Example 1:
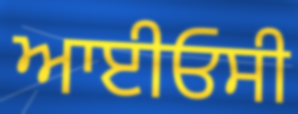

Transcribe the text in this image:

ਆਈਓਸੀ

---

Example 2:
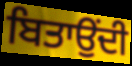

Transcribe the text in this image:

ਬਿਤਾਉਂਦੀ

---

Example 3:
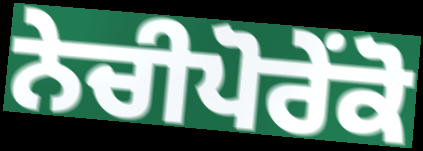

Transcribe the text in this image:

ਨੇਚੀਪੋਰੇਂਕੋ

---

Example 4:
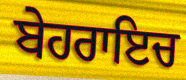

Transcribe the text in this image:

ਬੇਹਰਾਇਚ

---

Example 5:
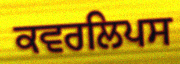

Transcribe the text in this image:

ਕਵਰਲਿਪਸ